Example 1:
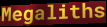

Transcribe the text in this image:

Megaliths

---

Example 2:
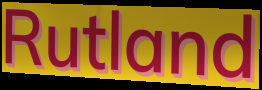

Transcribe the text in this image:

Rutland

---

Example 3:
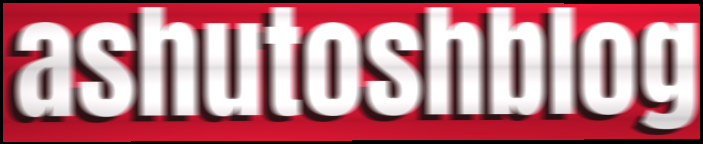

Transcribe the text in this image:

ashutoshblog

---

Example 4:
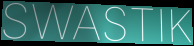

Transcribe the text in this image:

SWASTIK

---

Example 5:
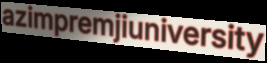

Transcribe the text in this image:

azimpremjiuniversity